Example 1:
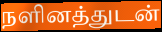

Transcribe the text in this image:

நளினத்துடன்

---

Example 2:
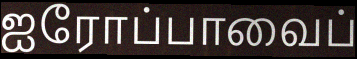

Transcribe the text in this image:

ஐரோப்பாவைப்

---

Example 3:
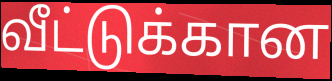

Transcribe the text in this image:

வீட்டுக்கான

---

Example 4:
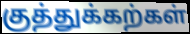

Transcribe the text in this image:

குத்துக்கற்கள்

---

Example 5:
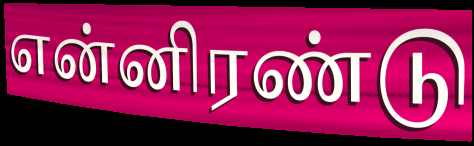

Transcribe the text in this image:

என்னிரண்டு